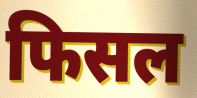
फिसल